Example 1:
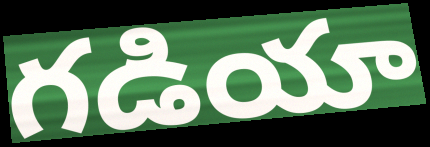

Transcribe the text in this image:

గడియా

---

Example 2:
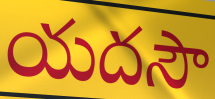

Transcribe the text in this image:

యదసౌ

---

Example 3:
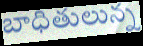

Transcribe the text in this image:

బాధితులున్న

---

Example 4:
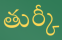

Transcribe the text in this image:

తుర్కీ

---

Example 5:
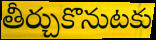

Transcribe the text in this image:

తీర్చుకొనుటకు